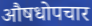
औषधोपचार